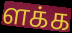
ளக்க